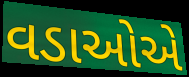
વડાઓએ